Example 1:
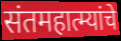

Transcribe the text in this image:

संतमहात्म्यांचे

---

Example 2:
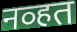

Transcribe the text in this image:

नव्हत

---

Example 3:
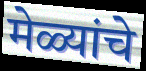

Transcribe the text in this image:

मेळ्यांचे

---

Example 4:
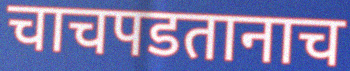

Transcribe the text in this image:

चाचपडतानाच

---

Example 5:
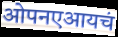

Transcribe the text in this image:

ओपनएआयचं